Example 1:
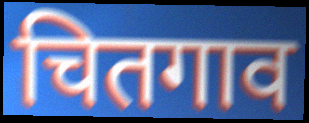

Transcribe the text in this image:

चितगाव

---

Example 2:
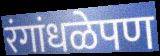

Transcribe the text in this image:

रंगांधळेपण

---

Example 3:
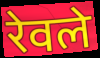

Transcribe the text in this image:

रेवले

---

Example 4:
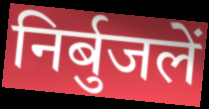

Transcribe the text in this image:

निर्बुजलें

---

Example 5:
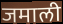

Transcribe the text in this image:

जमाली